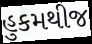
હુકમથીજ